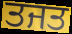
ਤਜਤ